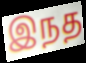
இநத